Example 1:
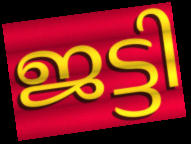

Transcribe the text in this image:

ജട്ടി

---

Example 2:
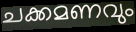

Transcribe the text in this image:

ചക്കമണവും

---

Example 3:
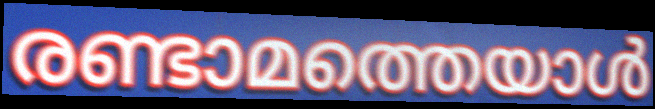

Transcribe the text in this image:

രണ്ടാമത്തെയാൾ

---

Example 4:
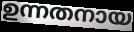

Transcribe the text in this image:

ഉന്നതനായ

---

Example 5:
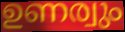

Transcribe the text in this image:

ഉണര്വും